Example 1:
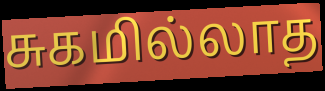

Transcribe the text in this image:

சுகமில்லாத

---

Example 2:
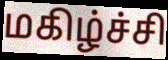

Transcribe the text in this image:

மகிழ்ச்சி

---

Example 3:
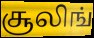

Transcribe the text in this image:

சூலிங்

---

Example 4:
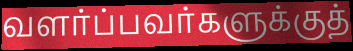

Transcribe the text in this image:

வளர்ப்பவர்களுக்குத்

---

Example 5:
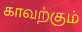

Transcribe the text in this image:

காவற்கும்